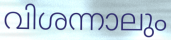
വിശന്നാലും